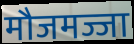
मौजमज्जा